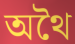
অথৈ